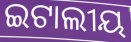
ଇଟାଲୀୟ